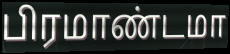
பிரமாண்டமா